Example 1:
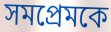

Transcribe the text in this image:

সমপ্রেমকে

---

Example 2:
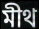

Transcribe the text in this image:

মীথ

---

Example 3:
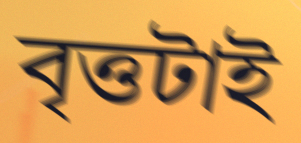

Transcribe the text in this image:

বৃত্তটাই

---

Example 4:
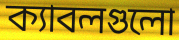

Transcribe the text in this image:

ক্যাবলগুলো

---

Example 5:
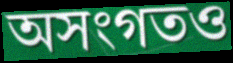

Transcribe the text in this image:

অসংগতও